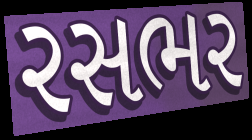
રસભર